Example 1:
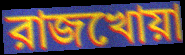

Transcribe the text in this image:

রাজখোয়া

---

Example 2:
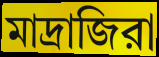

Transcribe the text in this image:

মাদ্রাজিরা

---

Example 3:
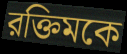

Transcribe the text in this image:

রক্তিমকে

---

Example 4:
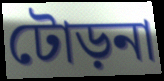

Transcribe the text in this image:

টোড়না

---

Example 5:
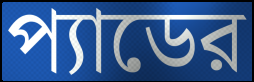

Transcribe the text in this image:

প্যাডের